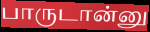
பாருடான்னு